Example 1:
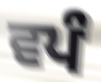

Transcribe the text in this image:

ਵਪੰ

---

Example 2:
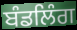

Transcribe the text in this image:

ਬੰਡਲਿੰਗ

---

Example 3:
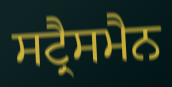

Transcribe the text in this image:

ਸਟ੍ਰੈਸਮੈਨ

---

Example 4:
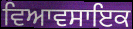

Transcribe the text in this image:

ਵਿਆਵਸਾਇਕ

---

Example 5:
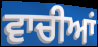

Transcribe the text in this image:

ਵਾਚੀਆਂ